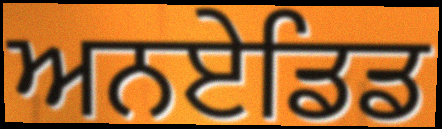
ਅਨਏਡਿਡ